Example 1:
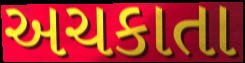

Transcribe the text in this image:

અચકાતા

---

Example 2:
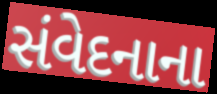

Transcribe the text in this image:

સંવેદનાના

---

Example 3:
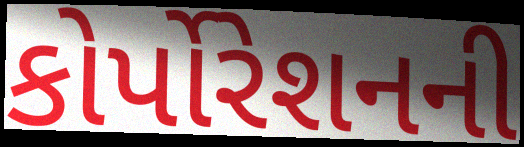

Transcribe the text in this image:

કોર્પોરેશનની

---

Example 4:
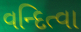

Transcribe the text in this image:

વન્દિત્વા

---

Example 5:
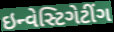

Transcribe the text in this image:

ઇન્વેસ્ટિગેટીંગ